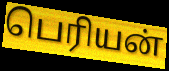
பெரியன்